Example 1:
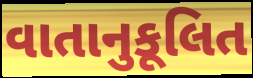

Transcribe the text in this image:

વાતાનુકૂલિત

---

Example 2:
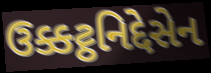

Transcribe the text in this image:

ઉક્કટ્ઠનિદ્દેસેન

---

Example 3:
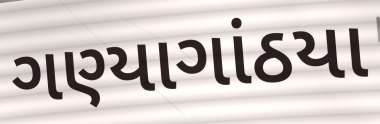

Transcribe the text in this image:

ગણ્યાગાંઠયા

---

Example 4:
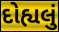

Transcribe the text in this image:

દોહ્યલું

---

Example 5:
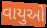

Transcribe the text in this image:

વાયુઓ